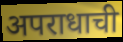
अपराधाची